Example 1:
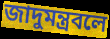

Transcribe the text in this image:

জাদুমন্ত্রবলে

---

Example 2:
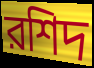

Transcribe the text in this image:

রশিদ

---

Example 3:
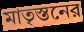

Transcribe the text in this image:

মাতৃস্তনের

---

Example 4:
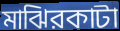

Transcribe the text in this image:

মাঝিরকাটা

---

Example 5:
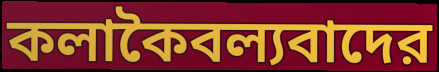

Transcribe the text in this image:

কলাকৈবল্যবাদের